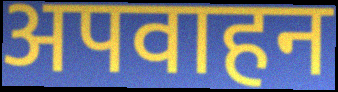
अपवाहन